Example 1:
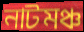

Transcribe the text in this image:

নাটমঞ্চ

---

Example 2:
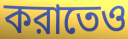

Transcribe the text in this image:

করাতেও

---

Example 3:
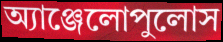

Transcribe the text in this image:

অ্যাঞ্জেলোপুলোস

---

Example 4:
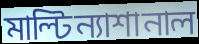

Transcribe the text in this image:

মাল্টিন্যাশানাল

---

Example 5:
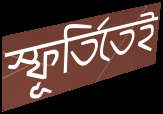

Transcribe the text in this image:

স্ফূর্তিতেই